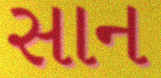
સાન